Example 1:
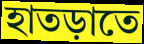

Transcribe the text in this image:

হাতড়াতে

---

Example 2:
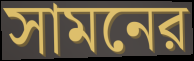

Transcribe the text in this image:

সামনের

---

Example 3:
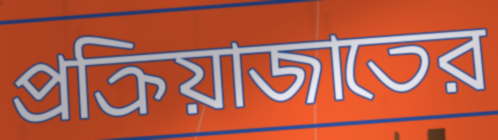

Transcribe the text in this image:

প্রক্রিয়াজাতের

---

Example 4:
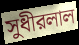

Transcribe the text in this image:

সুধীরলাল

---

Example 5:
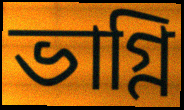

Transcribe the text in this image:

ভাগ্নি